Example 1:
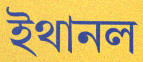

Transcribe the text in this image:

ইথানল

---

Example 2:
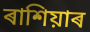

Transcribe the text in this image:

ৰাশিয়াৰ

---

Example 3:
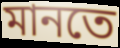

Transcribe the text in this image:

মানতে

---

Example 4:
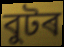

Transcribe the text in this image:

বুটৰ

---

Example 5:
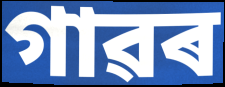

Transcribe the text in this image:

গাৱৰ